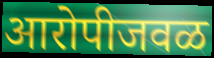
आरोपीजवळ